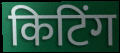
किटिंग